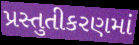
પ્રસ્તુતીકરણમાં